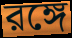
রঙ্গে